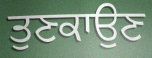
ਤੁਣਕਾਉਣ